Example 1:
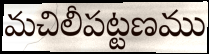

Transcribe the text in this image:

మచిలీపట్టణము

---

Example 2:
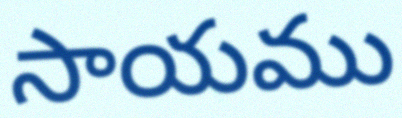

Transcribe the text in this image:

సాయము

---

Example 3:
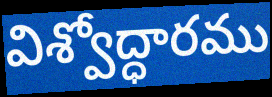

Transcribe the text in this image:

విశ్వోద్ధారము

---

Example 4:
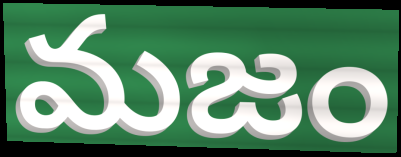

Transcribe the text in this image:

మజం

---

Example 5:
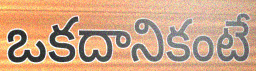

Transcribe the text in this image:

ఒకదానికంటే